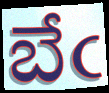
బేఁ